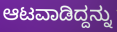
ಆಟವಾಡಿದ್ದನ್ನು